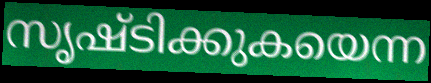
സൃഷ്ടിക്കുകയെന്ന